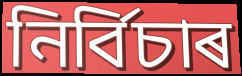
নিৰ্বিচাৰ